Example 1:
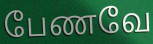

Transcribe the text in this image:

பேணவே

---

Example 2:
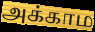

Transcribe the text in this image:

அக்காம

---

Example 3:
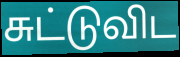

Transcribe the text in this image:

சுட்டுவிட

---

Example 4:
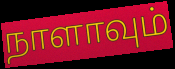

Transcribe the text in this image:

நாளாவும்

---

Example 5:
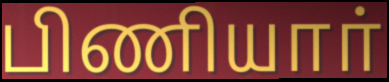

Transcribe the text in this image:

பிணியார்